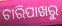
ଚାରିପାଖରୁ